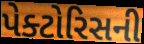
પેક્ટોરિસની